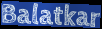
Balatkar